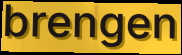
brengen